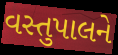
વસ્તુપાલને